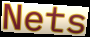
Nets